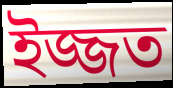
ইজ্জত